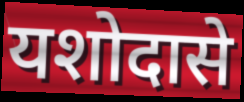
यशोदासे